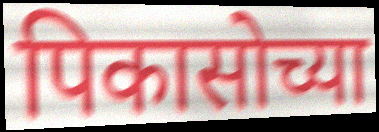
पिकासोच्या